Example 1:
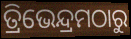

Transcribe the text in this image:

ତ୍ରିଭେନ୍ଦ୍ରମଠାରୁ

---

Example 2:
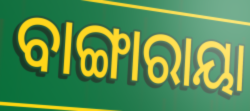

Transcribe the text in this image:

ବାଙ୍ଗାରାୟା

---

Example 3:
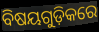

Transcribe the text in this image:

ବିଷୟଗୁଡ଼ିକରେ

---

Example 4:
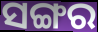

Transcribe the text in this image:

ସଙ୍ଗର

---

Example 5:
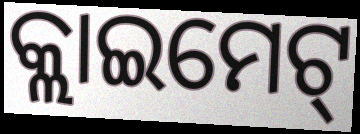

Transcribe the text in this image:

କ୍ଲାଇମେଟ୍